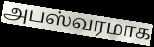
அபஸ்வரமாக